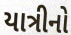
યાત્રીનો